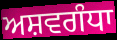
ਅਸ਼ਵਗੰਧਾ